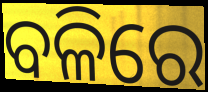
ବଳିରେ